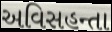
અવિસહન્તા